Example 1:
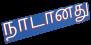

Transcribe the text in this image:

நாடானது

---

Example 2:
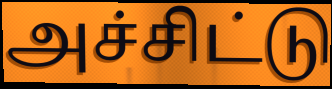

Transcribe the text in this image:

அச்சிட்டு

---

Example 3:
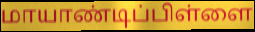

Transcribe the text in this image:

மாயாண்டிப்பிள்ளை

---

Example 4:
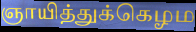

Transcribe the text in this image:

ஞாயித்துக்கெழம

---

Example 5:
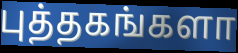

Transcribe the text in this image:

புத்தகங்களா